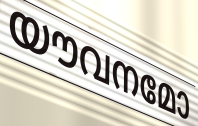
യൗവനമോ